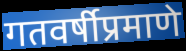
गतवर्षीप्रमाणे